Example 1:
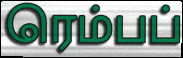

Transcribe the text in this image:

ரெம்பப்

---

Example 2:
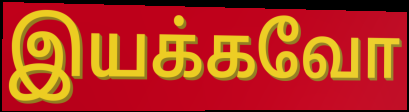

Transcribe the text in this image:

இயக்கவோ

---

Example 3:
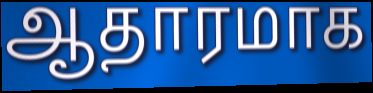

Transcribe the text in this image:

ஆதாரமாக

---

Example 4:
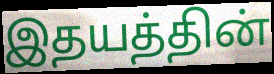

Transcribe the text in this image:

இதயத்தின்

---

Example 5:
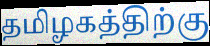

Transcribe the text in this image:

தமிழகத்திற்கு